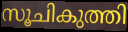
സൂചികുത്തി